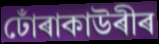
ঢোঁৰাকাউৰীৰ